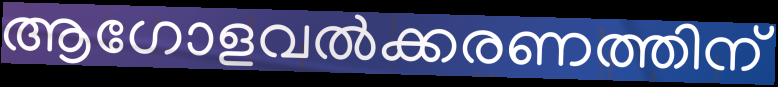
ആഗോളവൽക്കരണത്തിന്